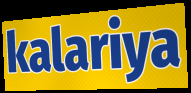
kalariya